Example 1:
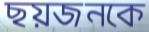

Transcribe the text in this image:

ছয়জনকে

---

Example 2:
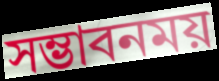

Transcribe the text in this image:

সম্ভাবনময়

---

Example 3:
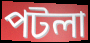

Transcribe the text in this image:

পটলা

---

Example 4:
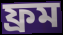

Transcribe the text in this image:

ফ্রম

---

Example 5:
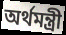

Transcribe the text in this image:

অর্থমন্ত্রী